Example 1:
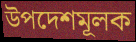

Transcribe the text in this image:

উপদেশমূলক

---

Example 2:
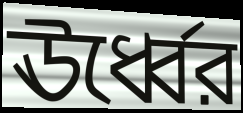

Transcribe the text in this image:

ঊর্ধ্বের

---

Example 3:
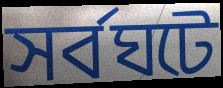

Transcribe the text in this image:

সর্বঘটে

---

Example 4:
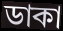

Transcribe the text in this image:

ডাকা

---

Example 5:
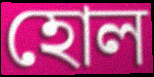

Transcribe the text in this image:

হোল